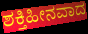
ಶಕ್ತಿಹೀನವಾದ